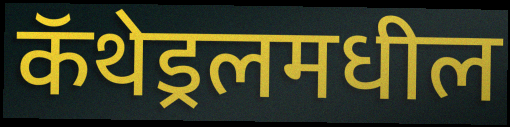
कॅथेड्रलमधील